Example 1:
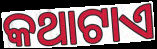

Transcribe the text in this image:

କଥାଟାଏ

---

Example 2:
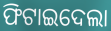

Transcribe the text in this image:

ଫିଟାଇଦେଲା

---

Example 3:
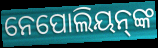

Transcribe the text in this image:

ନେପୋଲିୟନ୍‍ଙ୍କ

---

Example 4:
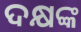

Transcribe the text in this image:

ଦକ୍ଷଙ୍କ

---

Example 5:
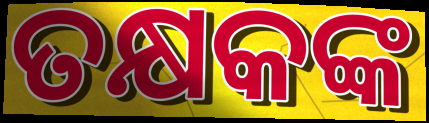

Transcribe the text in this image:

ତକ୍ଷକଙ୍କ